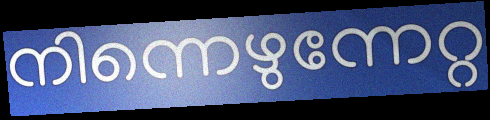
നിന്നെഴുന്നേറ്റ